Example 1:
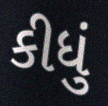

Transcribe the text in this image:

કીધું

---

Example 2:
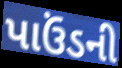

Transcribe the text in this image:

પાઉંડની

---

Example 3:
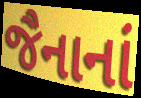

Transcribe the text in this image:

જૈનાનાં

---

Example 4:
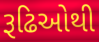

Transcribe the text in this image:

રૂઢિઓથી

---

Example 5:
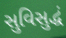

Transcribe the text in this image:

સુવિસુદ્ધં